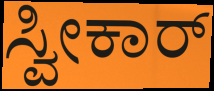
ಸ್ವೀಕಾರ್